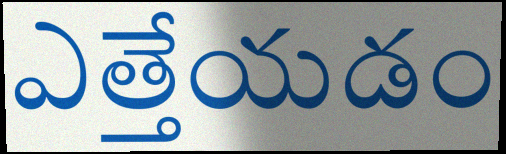
ఎత్తేయడం